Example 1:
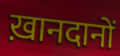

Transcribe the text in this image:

ख़ानदानों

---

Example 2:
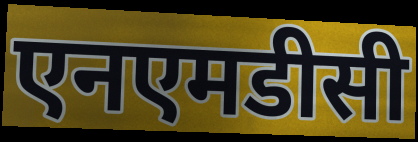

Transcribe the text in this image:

एनएमडीसी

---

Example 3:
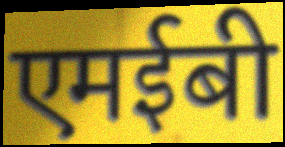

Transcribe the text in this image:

एमईबी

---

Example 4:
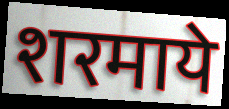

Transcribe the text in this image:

शरमाये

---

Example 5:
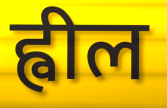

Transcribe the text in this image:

ह्वील